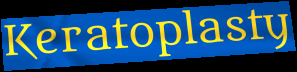
Keratoplasty